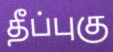
தீப்புகு